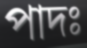
পাদঃ